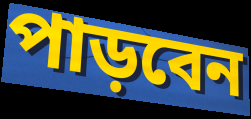
পাড়বেন